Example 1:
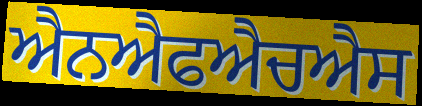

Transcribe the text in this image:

ਐਨਐਫਐਚਐਸ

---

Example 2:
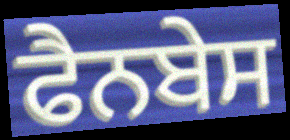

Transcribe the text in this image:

ਫੈਨਬੇਸ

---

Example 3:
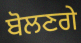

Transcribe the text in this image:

ਬੋਲਣਗੇ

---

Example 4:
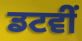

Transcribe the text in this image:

ਡਟਵੀਂ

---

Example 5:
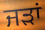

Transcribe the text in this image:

ਜੜਾਂ